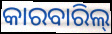
କାରବାରିଲ୍